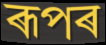
ৰূপৰ